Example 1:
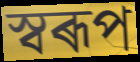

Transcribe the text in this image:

স্বৰূপ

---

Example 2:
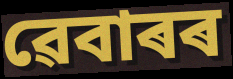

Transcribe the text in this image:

ৱেবাৰৰ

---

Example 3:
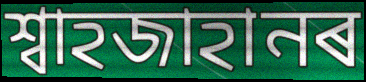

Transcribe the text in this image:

শ্বাহজাহানৰ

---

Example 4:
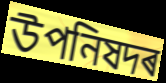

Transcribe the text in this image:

উপনিষদৰ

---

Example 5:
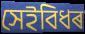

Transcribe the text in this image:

সেইবিধৰ